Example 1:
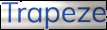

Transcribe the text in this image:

Trapeze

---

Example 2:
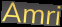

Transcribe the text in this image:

Amri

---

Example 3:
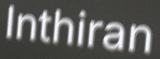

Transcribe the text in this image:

Inthiran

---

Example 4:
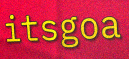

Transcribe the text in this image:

itsgoa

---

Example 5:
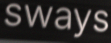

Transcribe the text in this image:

sways